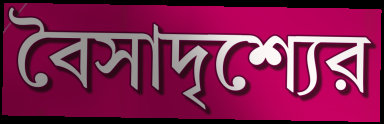
বৈসাদৃশ্যের